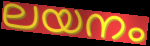
ലയനം